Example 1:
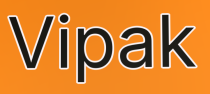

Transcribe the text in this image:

Vipak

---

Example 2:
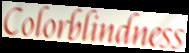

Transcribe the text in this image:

Colorblindness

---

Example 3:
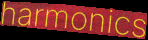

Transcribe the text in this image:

harmonics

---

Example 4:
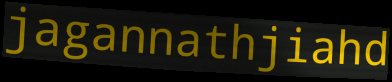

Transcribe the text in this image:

jagannathjiahd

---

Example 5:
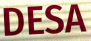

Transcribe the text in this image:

DESA